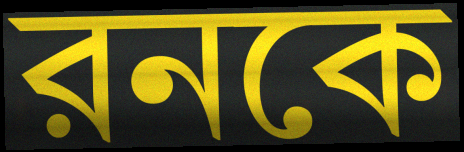
রনকে